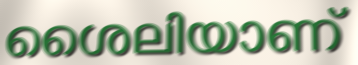
ശൈലിയാണ്